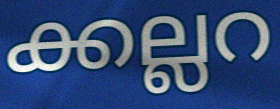
ക്കല്ലറ